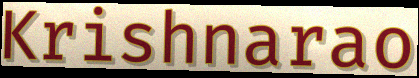
Krishnarao